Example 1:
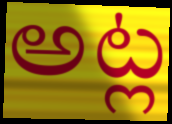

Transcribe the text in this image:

అట్ల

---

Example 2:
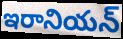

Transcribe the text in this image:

ఇరానియన్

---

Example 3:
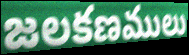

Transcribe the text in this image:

జలకణములు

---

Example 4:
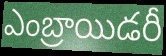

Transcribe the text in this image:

ఎంబ్రాయిడరీ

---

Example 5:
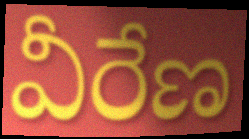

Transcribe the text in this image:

వీరేణ